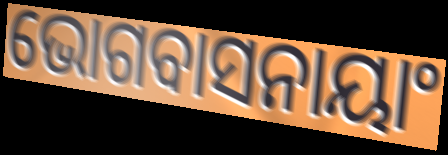
ଭୋଗବାସନାୟାଂ